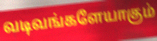
வடிவங்களேயாகும்